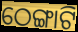
ଠେଙ୍ଗାଟି